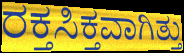
ರಕ್ತಸಿಕ್ತವಾಗಿತ್ತು